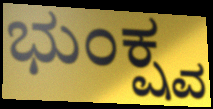
ಭುಂಕ್ಷ್ವ